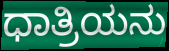
ಧಾತ್ರಿಯನು